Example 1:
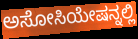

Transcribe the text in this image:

ಅಸೋಸಿಯೇಷನ್ನಲ್ಲಿ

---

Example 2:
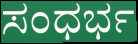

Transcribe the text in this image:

ಸಂಧರ್ಭ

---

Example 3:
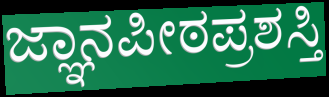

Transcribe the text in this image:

ಜ್ಞಾನಪೀಠಪ್ರಶಸ್ತಿ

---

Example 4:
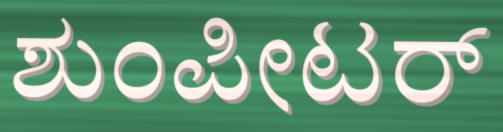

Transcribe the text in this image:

ಶುಂಪೀಟರ್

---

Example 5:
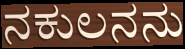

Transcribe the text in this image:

ನಕುಲನನು